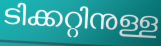
ടിക്കറ്റിനുള്ള